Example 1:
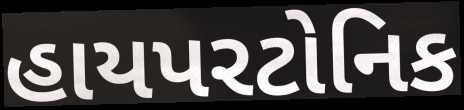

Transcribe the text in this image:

હાયપરટોનિક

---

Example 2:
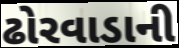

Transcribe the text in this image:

ઢોરવાડાની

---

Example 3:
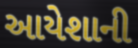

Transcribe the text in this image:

આયેશાની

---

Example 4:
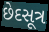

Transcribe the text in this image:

છેદસૂત્ર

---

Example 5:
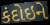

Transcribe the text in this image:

કંદોઇને